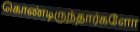
கொண்டிருந்தார்களோ